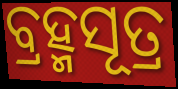
ବ୍ରହ୍ମସୂତ୍ର